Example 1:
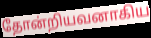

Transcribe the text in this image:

தோன்றியவனாகிய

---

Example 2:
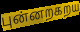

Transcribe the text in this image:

புன்னறகறய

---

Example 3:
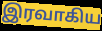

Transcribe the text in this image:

இரவாகிய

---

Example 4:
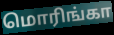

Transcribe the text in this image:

மொரிங்கா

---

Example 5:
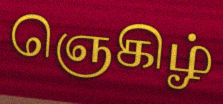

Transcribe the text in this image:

ஞெகிழ்